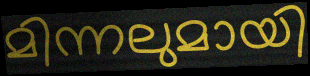
മിന്നലുമായി